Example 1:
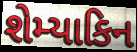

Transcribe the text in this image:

શેમ્યાકિન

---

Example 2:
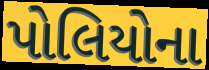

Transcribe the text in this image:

પોલિયોના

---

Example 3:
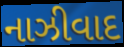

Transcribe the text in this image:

નાઝીવાદ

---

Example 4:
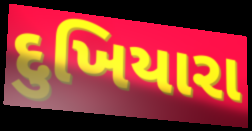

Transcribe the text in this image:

દુખિયારા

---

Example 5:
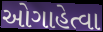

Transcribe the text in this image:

ઓગાહેત્વા